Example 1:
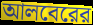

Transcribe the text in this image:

আলবেরের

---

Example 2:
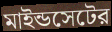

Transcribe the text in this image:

মাইন্ডসেটের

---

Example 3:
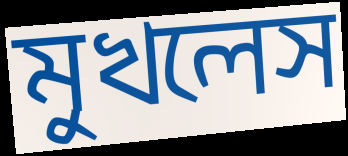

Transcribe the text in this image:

মুখলেস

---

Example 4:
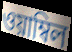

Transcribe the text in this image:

ওয়াম্বিল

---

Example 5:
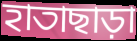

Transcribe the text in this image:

হাতাছাড়া